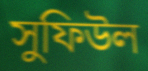
সুফিউল